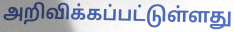
அறிவிக்கப்பட்டுள்ளது